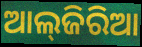
ଆଲ୍‌ଜିରିଆ